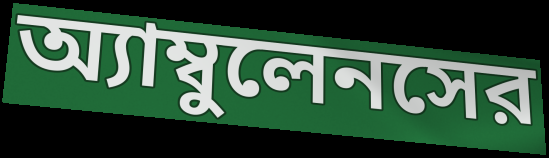
অ্যাম্বুলেনসের